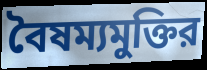
বৈষম্যমুক্তির